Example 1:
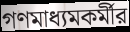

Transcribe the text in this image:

গণমাধ্যমকর্মীর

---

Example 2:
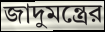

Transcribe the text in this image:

জাদুমন্ত্রের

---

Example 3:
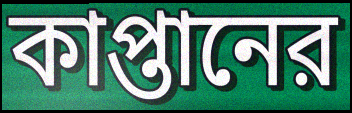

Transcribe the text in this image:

কাপ্তানের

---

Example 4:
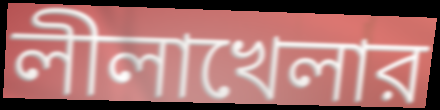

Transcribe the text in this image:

লীলাখেলার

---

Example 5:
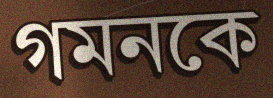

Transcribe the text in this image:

গমনকে